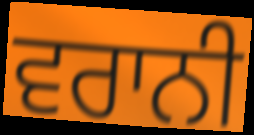
ਵਰਾਨੀ